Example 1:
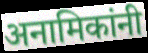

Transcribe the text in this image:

अनामिकांनी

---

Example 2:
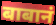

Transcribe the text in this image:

बाबानं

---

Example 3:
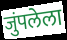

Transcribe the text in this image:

जुंपलेला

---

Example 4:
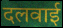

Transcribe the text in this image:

दलवाई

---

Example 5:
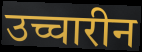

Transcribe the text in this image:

उच्चारीन